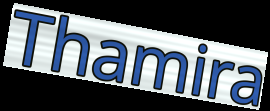
Thamira